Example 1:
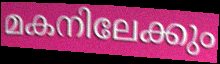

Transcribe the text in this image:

മകനിലേക്കും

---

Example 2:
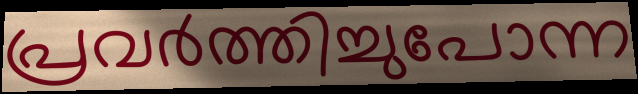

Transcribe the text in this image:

പ്രവർത്തിച്ചുപോന്ന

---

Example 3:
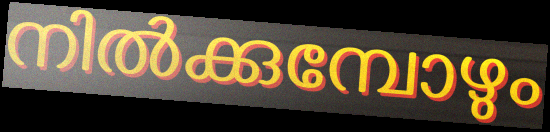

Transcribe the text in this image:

നിൽക്കുമ്പോഴും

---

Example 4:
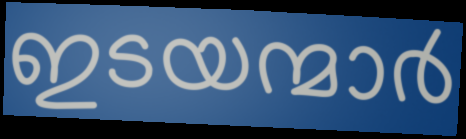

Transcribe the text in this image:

ഇടയന്മാർ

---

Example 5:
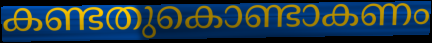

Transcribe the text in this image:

കണ്ടതുകൊണ്ടാകണം